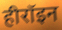
हीरॉइन